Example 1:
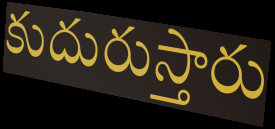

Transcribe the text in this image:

కుదురుస్తారు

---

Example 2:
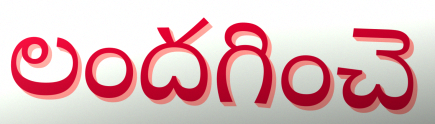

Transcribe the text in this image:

లందగించె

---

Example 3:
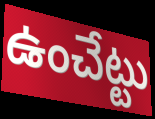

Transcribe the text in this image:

ఉంచేట్టు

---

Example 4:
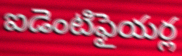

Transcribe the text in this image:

ఐడెంటిఫైయర్ల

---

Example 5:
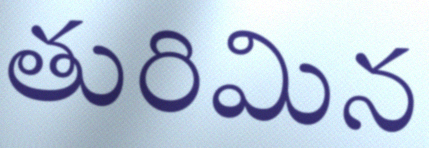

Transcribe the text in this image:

తురిమిన